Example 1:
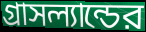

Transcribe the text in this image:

গ্রাসল্যান্ডের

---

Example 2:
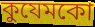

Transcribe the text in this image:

কুযেমকো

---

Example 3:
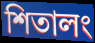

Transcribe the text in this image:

শিতালং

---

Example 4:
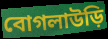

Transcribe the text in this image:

বোগলাউড়ি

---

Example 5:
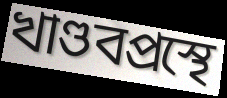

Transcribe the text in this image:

খাণ্ডবপ্রস্থে